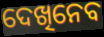
ଦେଖିନେବ